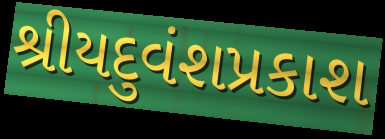
શ્રીયદુવંશપ્રકાશ